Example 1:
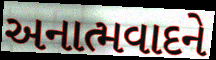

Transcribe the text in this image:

અનાત્મવાદને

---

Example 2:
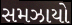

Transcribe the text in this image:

સમઝાયો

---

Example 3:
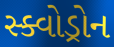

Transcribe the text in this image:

સ્ક્વોડ્રોન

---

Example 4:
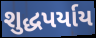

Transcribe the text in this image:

શુદ્ધપર્યાય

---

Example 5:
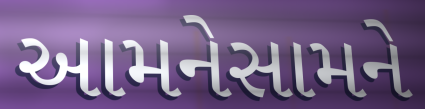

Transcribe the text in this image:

આમનેસામને